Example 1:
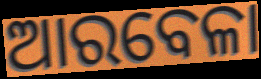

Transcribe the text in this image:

ଆରବେଳା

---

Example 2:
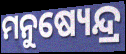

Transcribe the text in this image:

ମନୁଷ୍ୟେନ୍ଦ୍ର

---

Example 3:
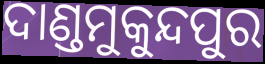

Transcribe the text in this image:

ଦାଣ୍ଡମୁକୁନ୍ଦପୁର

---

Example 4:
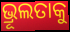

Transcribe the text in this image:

ଭ୍ରୂଲତାକୁ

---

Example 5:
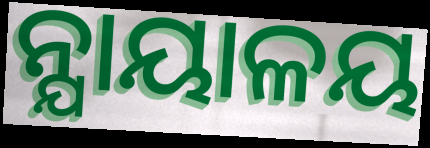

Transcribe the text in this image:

ନ୍ଯାୟାଳୟ